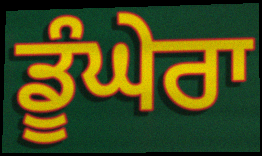
ਡੂੰਘੇਰਾ